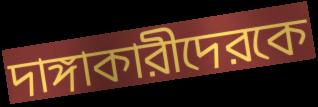
দাঙ্গাকারীদেরকে